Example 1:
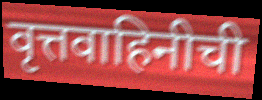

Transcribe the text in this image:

वृत्तवाहिनीची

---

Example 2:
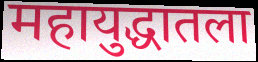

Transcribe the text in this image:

महायुद्धातला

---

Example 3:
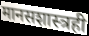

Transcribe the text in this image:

मानसशास्त्रही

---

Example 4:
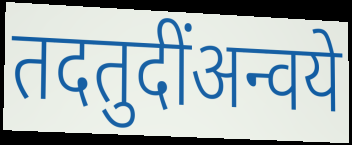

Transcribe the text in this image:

तदतुदींअन्वये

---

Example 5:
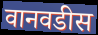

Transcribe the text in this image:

वानवडीस